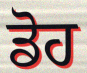
ਡੋਹ